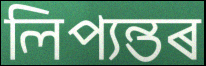
লিপ্যন্তৰ